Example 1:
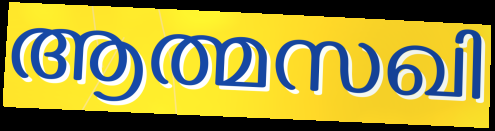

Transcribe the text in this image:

ആത്മസഖി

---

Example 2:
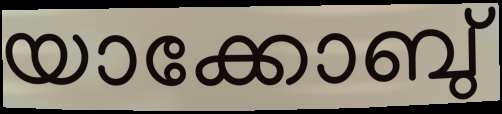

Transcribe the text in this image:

യാക്കോബു്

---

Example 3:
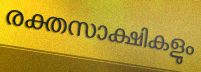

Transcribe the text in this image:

രക്തസാക്ഷികളും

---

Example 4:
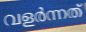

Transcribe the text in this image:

വളർന്നത്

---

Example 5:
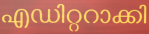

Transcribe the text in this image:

എഡിറ്ററാക്കി